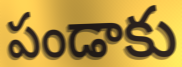
పండాకు